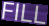
FILL